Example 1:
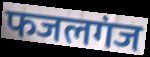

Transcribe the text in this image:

फजलगंज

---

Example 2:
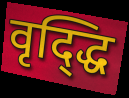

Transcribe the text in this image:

वृद्द्धि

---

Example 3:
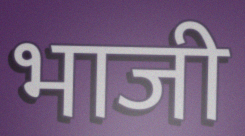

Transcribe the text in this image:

भाजी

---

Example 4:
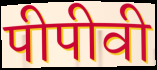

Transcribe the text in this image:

पीपीवी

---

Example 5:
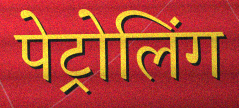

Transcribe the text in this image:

पेट्रोलिंग